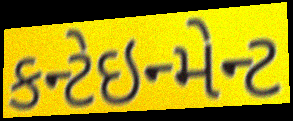
કન્ટેઇન્મેન્ટ